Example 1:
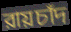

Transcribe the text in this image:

রায়চাঁদ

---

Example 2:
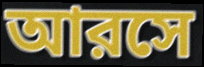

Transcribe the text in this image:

আরসে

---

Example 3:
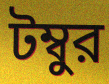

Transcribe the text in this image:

টম্বুর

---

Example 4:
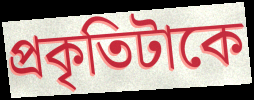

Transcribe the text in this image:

প্রকৃতিটাকে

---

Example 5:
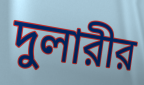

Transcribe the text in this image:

দুলারীর